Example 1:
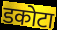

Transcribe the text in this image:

डकोटा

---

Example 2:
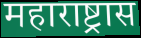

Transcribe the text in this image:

महाराष्ट्रास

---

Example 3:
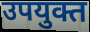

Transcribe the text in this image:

उपयुक्त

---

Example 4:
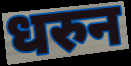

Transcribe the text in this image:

धरुन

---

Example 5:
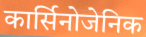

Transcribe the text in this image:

कार्सिनोजेनिक